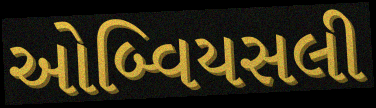
ઓબ્વિયસલી